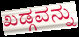
ಖಡ್ಗವನ್ನು